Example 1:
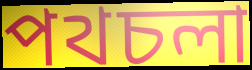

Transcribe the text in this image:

পথচলা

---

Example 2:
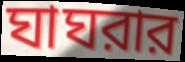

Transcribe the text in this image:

ঘাঘরার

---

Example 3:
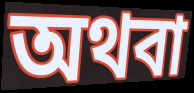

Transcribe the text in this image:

অথবা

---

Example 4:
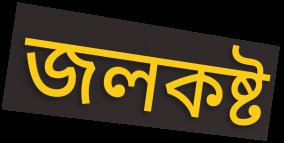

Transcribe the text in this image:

জলকষ্ট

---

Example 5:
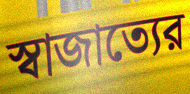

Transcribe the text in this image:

স্বাজাত্যের